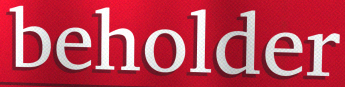
beholder